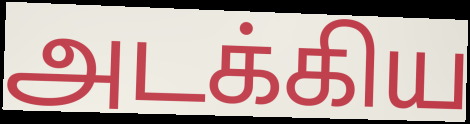
அடக்கிய